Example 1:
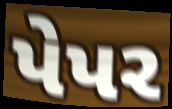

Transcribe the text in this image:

પેપર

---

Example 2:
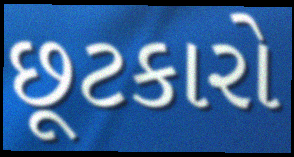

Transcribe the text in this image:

છૂટકારો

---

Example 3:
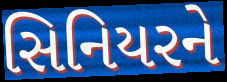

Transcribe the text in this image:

સિનિયરને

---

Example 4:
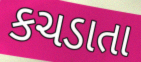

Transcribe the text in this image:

કચડાતા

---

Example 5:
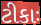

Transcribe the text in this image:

ટીકાઃ